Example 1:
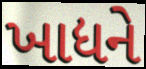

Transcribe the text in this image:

ખાદ્યને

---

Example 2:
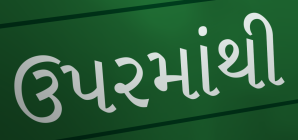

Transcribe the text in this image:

ઉપરમાંથી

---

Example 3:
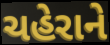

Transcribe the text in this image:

ચહેરાને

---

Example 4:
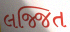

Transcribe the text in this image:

લજ્જિત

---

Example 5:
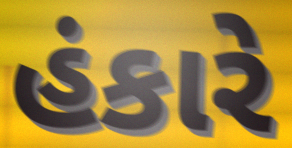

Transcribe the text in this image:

હંકારે